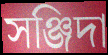
সঞ্জিদা